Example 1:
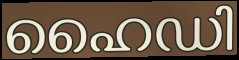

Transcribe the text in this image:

ഹൈഡി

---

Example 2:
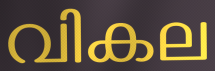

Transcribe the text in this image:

വികല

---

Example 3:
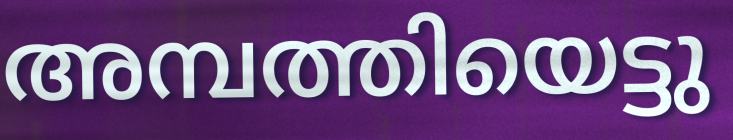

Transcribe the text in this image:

അമ്പത്തിയെട്ടു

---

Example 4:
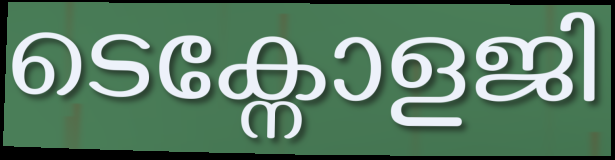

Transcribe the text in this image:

ടെക്നോളജി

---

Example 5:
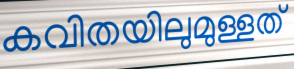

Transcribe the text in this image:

കവിതയിലുമുള്ളത്